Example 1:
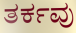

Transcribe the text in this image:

ತರ್ಕವು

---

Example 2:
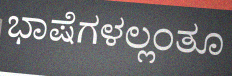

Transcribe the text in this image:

ಭಾಷೆಗಳಲ್ಲಂತೂ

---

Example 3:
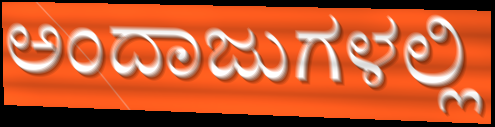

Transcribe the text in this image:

ಅಂದಾಜುಗಳಲ್ಲಿ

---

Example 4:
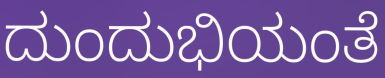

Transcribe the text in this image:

ದುಂದುಭಿಯಂತೆ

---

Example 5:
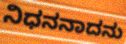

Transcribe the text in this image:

ನಿಧನನಾದನು